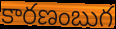
కారణంబుగ